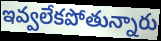
ఇవ్వలేకపోతున్నారు